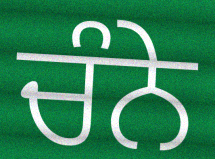
ਚੰਨੇ